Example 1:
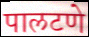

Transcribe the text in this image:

पालटणे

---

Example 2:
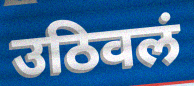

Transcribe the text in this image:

उठिवलं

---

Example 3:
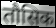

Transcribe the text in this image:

तौसिक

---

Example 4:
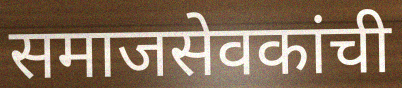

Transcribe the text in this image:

समाजसेवकांची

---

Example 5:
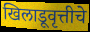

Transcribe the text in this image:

खिलाडूवृत्तीचे